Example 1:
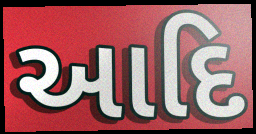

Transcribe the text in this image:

આદિ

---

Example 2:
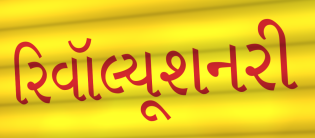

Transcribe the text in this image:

રિવૉલ્યૂશનરી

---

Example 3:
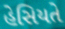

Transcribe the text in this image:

હેસિયતે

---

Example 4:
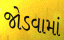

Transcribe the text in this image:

જોડવામાં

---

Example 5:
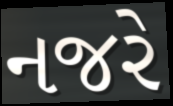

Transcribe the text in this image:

નજરે